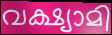
വക്ഷ്യാമി